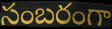
సంబరంగా